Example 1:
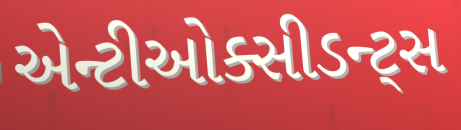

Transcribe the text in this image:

એન્ટીઓક્સીડન્ટ્સ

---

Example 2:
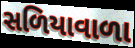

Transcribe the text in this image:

સળિયાવાળા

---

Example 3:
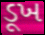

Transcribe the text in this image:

ડૂખ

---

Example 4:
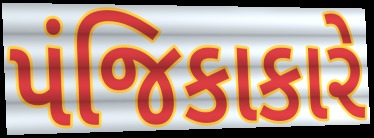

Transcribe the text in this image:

પંજિકાકારે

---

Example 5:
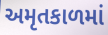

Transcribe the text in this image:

અમૃતકાળમાં